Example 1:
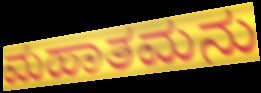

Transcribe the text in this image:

ಮಹಾತಮನು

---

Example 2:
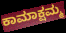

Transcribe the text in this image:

ಕಾಮಾಕ್ಷಮ್ಮ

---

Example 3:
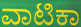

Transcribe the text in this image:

ವಾಟಿಕಾ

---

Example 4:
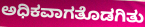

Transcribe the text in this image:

ಅಧಿಕವಾಗತೊಡಗಿತು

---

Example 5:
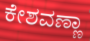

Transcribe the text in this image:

ಕೇಶವಣ್ಣಾ